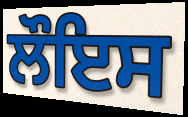
ਲੌਇਸ